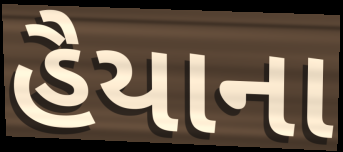
હૈયાના